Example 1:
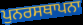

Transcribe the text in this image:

ਪੁਨਰਸਥਾਪਨਾ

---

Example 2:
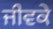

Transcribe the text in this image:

ਜੀਵਕੇ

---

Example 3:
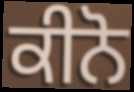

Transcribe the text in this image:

ਕੀਨੋ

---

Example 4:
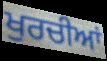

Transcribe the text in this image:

ਖੁਰਚੀਆਂ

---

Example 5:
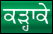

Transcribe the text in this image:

ਕੜ੍ਹਾਕੇ